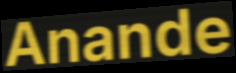
Anande